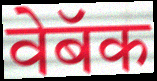
वेबॅक